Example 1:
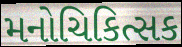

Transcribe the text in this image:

મનોચિકિત્સક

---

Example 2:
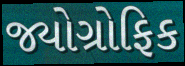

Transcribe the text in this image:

જ્યોગ્રોફિક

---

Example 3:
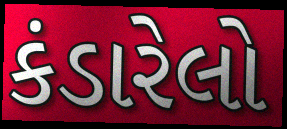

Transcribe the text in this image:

કંડારેલો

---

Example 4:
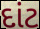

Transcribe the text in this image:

દાંટ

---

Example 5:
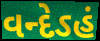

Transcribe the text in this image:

વન્દેઽહં